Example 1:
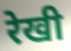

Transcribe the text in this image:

रेखी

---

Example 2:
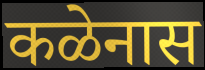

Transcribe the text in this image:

कळेनास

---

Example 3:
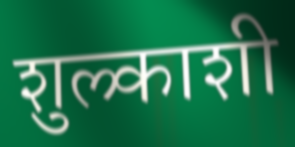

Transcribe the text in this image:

शुल्काशी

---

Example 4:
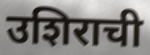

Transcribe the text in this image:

उशिराची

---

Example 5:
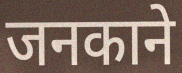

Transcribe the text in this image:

जनकाने